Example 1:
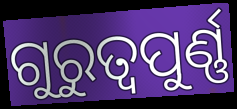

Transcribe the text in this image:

ଗୁରୁତ୍ୱପୁର୍ଣ୍ଣ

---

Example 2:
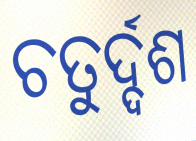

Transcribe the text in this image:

ଚତୁର୍ଦ୍ଦଶ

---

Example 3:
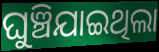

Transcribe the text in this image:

ଘୁଞ୍ଚିଯାଇଥିଲା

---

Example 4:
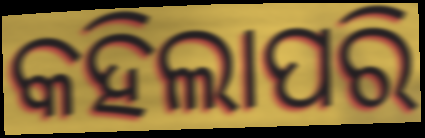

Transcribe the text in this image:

କହିଲାପରି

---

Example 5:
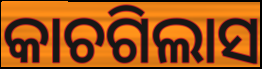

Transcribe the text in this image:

କାଚଗିଲାସ